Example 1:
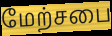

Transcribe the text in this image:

மேற்சபை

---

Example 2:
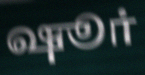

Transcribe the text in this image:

ஷூர்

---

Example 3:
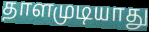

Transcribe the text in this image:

தாளமுடியாது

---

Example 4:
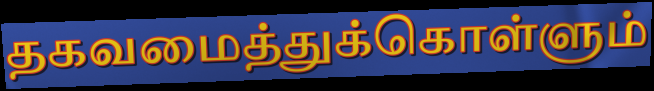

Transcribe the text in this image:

தகவமைத்துக்கொள்ளும்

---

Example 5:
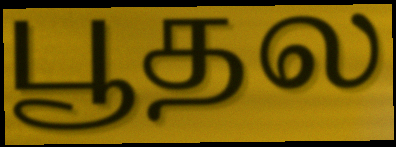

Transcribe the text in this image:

பூதல